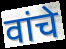
वांचे